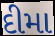
દીમા